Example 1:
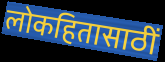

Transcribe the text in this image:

लोकहितासाठीं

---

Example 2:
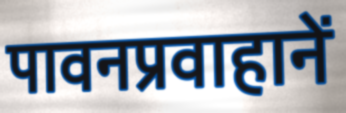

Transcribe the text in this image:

पावनप्रवाहानें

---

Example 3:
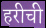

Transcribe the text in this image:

हरीची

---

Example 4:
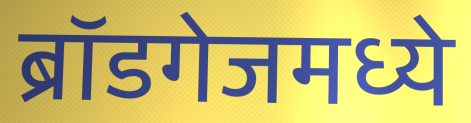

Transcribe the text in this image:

ब्रॉडगेजमध्ये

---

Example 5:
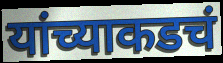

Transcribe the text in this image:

यांच्याकडचं